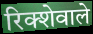
रिक्‍शेवाले